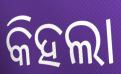
କିହଲା